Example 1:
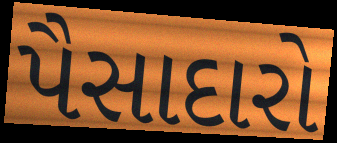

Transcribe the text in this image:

પૈસાદારો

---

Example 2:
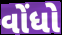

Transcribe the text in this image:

વોંધો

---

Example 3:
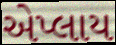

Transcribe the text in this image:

એપ્લાય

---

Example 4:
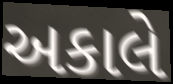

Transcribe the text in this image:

અકાલે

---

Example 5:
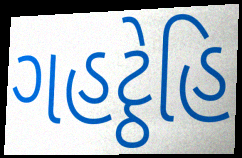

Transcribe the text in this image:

ગહટ્ઠેહિ